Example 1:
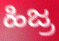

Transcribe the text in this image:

ಹಿಜ್ರ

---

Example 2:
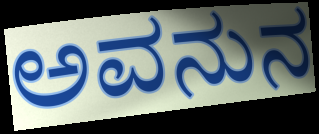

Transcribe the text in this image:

ಅವನುನ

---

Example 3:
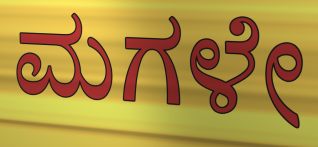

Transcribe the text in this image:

ಮಗಳೇ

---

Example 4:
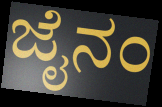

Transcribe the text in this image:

ಜೈನಂ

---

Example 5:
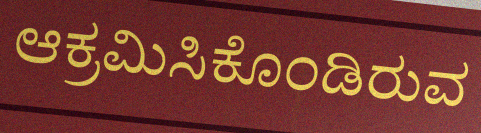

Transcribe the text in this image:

ಆಕ್ರಮಿಸಿಕೊಂಡಿರುವ